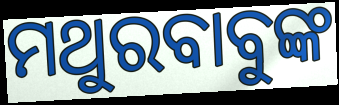
ମଥୁରବାବୁଙ୍କ